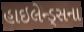
હાઇલેન્ડ્સના